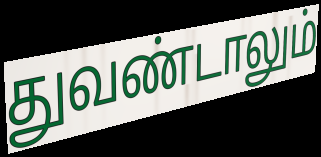
துவண்டாலும்